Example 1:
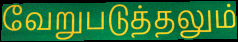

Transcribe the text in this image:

வேறுபடுத்தலும்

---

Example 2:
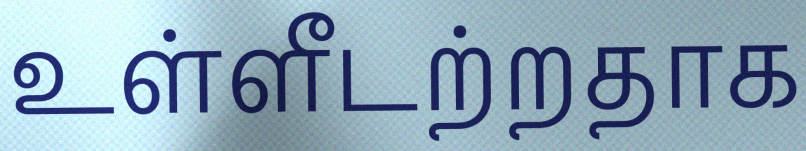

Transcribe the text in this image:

உள்ளீடற்றதாக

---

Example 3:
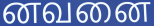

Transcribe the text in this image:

னவனை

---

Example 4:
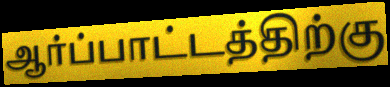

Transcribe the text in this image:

ஆர்ப்பாட்டத்திற்கு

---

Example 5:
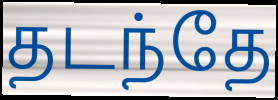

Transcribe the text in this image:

தடந்தே